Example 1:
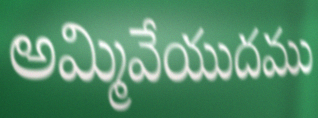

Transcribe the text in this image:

అమ్మివేయుదము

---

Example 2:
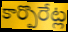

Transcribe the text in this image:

కార్పొరేట్ల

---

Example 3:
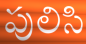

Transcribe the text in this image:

పులిసి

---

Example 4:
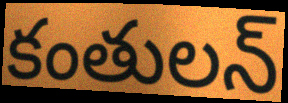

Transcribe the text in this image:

కంతులన్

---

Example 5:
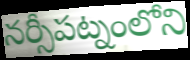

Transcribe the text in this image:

నర్సీపట్నంలోని